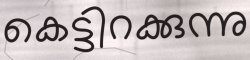
കെട്ടിറക്കുന്നു